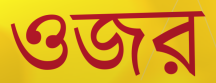
ওজর